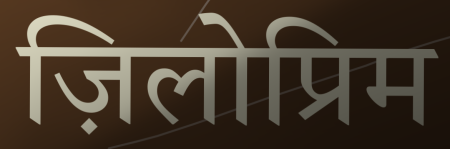
ज़िलोप्रिम